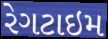
રેગટાઇમ